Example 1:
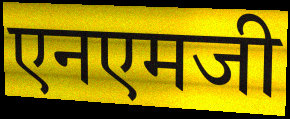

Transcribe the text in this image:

एनएमजी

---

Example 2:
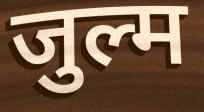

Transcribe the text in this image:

जुल्म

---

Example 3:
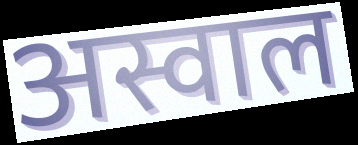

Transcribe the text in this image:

अस्वाल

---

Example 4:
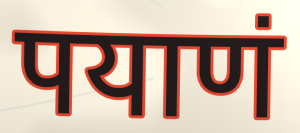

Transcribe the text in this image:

पयाणं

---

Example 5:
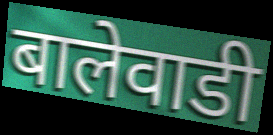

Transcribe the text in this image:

बालेवाडी